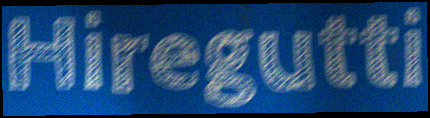
Hiregutti